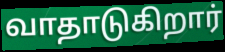
வாதாடுகிறார்